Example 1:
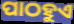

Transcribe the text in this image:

ପାଠହୁଏ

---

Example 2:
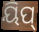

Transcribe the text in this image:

ୟିପ୍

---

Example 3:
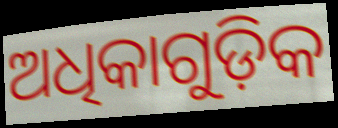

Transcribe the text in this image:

ଅଧିକାଗୁଡ଼ିକ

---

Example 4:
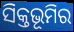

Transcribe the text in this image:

ସିକ୍ତଭୂମିର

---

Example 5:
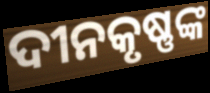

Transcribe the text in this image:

ଦୀନକୃଷ୍ଣଙ୍କ